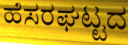
ಹೆಸರಘಟ್ಟದ